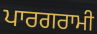
ਪਾਰਗਰਾਮੀ